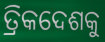
ତ୍ରିକଦେଶକୁ